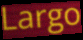
Largo